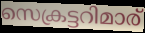
സെക്രട്ടറിമാര്